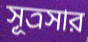
সূত্রসার